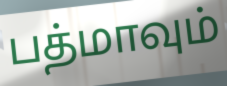
பத்மாவும்